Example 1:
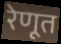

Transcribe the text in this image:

रेणूत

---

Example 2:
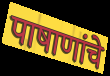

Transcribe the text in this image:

पाषाणांचे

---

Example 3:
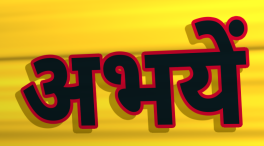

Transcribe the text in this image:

अभयें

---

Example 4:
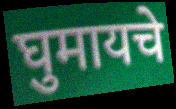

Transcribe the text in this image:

घुमायचे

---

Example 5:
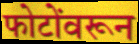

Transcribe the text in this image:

फोटोंवरून